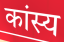
कांस्‍य